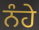
ਨੰਹੇ